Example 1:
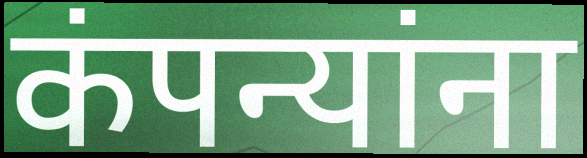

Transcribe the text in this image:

कंपन्यांना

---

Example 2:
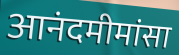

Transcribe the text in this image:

आनंदमीमांसा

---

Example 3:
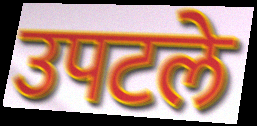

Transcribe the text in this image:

उपटले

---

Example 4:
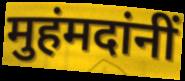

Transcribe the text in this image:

मुहंमदांनीं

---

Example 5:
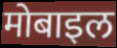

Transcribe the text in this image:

मोबाइल